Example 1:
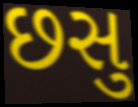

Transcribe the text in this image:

છસુ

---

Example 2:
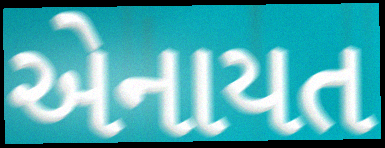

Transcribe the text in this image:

એનાયત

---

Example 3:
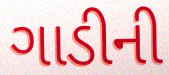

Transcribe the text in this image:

ગાડીની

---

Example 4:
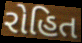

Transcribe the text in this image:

રોહિત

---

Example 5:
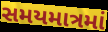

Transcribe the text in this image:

સમયમાત્રમાં